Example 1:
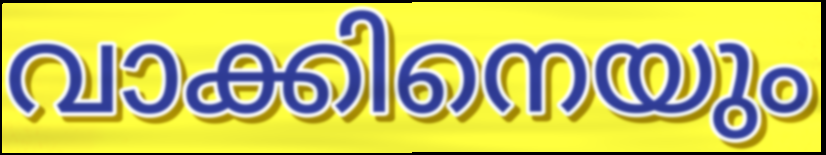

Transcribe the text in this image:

വാക്കിനെയും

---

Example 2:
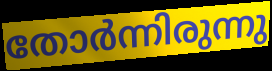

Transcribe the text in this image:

തോർന്നിരുന്നു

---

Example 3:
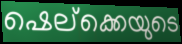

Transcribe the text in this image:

ഷെല്ക്കെയുടെ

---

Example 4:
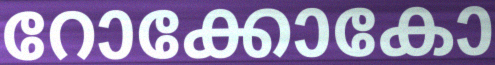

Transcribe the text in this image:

റോക്കോകോ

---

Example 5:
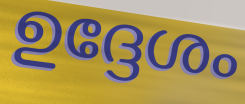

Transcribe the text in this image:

ഉദ്ദേശം